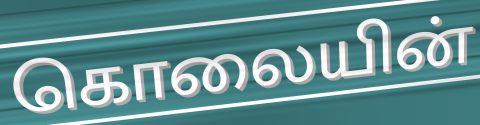
கொலையின்